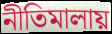
নীতিমালায়